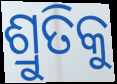
ଶ୍ରୁତିକୁ